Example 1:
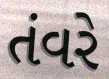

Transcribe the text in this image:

તંવરે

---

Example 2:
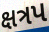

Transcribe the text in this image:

ક્ષત્રપ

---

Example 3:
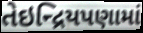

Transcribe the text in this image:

તેઇન્દ્રિયપણામાં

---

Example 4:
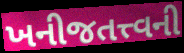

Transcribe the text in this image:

ખનીજતત્ત્વની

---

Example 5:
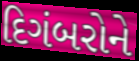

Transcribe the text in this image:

દિગંબરોને